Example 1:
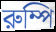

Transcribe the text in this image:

রুম্পি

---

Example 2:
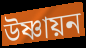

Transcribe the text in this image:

উষ্ণায়ন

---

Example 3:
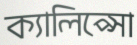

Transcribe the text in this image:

ক্যালিপ্সো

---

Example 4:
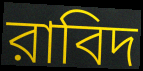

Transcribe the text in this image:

রাবিদ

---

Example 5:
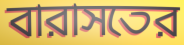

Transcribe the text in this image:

বারাসতের